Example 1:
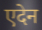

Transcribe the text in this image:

एदेन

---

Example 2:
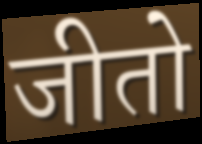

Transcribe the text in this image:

जीतो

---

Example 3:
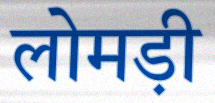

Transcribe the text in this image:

लोमड़ी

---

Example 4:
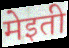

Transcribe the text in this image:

मेइती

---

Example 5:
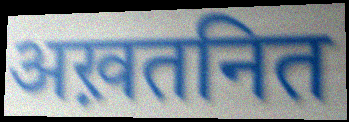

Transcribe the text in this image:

अख़तनित